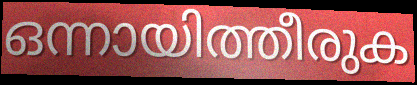
ഒന്നായിത്തീരുക